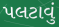
પલટાવું